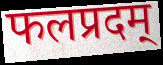
फलप्रदम्